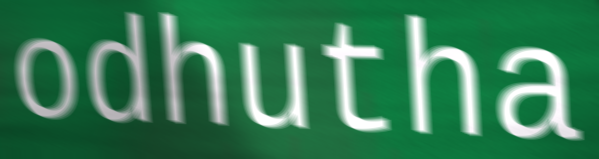
odhutha